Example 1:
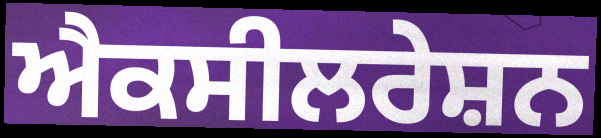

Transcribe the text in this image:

ਐਕਸੀਲਰੇਸ਼ਨ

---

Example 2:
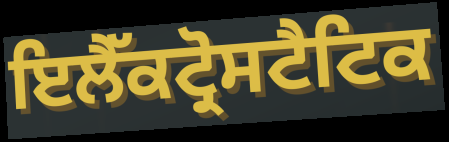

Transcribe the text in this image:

ਇਲੈੱਕਟ੍ਰੋਸਟੈਟਿਕ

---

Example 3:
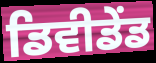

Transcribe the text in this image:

ਡਿਵੀਡੇਂਡ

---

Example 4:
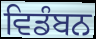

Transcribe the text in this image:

ਵਿਡੰਬਨ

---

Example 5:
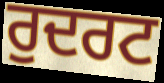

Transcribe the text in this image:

ਰੁਦਰਟ